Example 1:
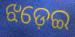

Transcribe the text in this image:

ଝଡ଼େଇ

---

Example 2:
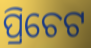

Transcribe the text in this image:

ପ୍ରିଚେଟ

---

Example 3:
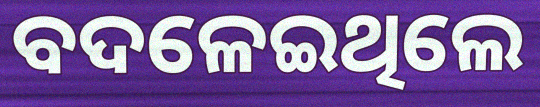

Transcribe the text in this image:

ବଦଳେଇଥିଲେ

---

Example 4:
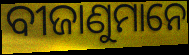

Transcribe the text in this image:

ବୀଜାଣୁମାନେ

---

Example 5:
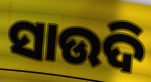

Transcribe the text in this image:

ସାଉଦି